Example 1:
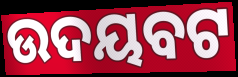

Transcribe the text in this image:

ଉଦୟବଟ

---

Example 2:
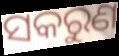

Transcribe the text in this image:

ସକରୁଣ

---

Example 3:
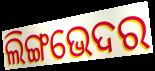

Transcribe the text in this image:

ଲିଙ୍ଗଭେଦର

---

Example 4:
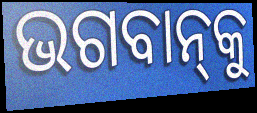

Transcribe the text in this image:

ଭଗବାନ୍‌କୁ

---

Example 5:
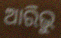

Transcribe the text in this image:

ଆରିଭୁ